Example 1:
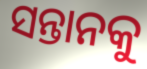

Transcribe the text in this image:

ସନ୍ତାନକୁ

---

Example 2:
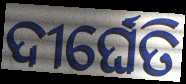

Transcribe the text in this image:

ଦୀର୍ଘେତି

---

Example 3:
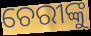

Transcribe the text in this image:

ଚେରୀଙ୍କୁ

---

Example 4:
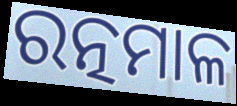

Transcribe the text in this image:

ରତ୍ନମାଳ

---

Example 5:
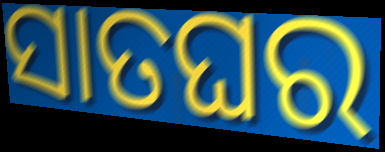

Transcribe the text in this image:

ସାତଘର